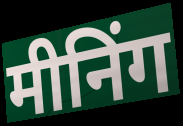
मीनिंग